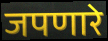
जपणारे